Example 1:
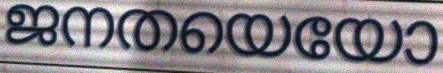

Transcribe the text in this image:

ജനതയെയോ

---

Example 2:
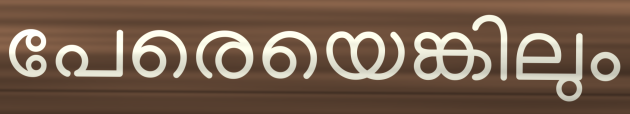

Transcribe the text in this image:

പേരെയെങ്കിലും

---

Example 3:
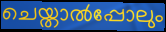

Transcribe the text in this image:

ചെയ്താൽപ്പോലും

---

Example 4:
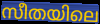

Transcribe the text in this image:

സീതയിലെ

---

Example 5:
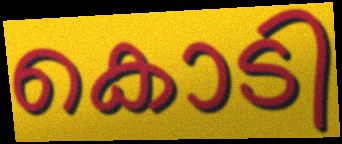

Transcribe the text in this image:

കൊടി